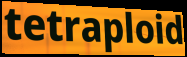
tetraploid